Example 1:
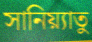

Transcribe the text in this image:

সানিয়্যাতু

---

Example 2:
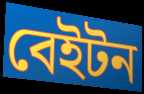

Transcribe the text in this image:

বেইটন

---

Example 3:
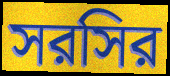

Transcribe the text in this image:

সরসির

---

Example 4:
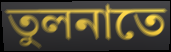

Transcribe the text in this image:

তুলনাতে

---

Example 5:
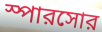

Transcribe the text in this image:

স্পারসোর